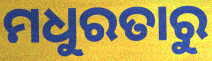
ମଧୁରତାରୁ